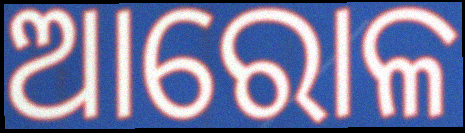
ଆରୋଳ